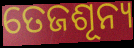
ତେଜଶୂନ୍ୟ